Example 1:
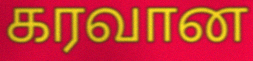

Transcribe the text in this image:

கரவான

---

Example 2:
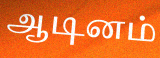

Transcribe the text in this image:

ஆடினம்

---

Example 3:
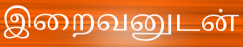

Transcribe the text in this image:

இறைவனுடன்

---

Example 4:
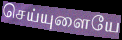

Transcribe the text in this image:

செய்யுளையே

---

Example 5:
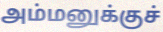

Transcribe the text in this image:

அம்மனுக்குச்